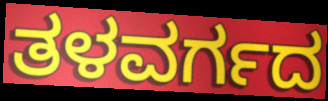
ತಳವರ್ಗದ